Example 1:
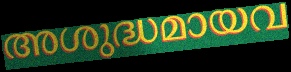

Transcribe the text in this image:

അശുദ്ധമായവ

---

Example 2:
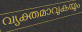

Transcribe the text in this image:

വ്യക്തമാവുകയും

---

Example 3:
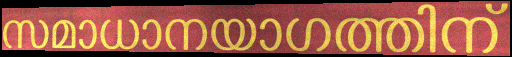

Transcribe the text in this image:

സമാധാനയാഗത്തിന്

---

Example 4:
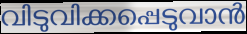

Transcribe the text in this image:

വിടുവിക്കപ്പെടുവാൻ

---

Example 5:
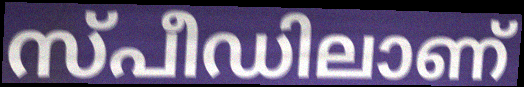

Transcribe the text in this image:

സ്പീഡിലാണ്